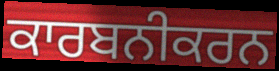
ਕਾਰਬਨੀਕਰਨ